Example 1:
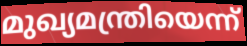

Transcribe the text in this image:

മുഖ്യമന്ത്രിയെന്ന്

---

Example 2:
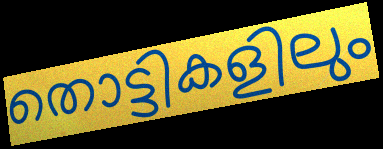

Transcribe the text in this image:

തൊട്ടികളിലും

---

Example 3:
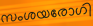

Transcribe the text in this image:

സംശയരോഗി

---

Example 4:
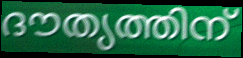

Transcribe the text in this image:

ദൗത്യത്തിന്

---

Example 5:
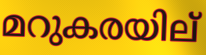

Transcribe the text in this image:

മറുകരയില്